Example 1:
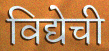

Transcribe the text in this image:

विद्येची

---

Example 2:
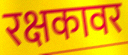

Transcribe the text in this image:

रक्षकावर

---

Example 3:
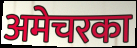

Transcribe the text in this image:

अमेचरका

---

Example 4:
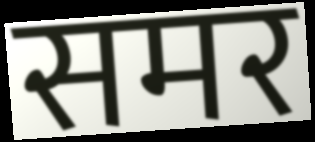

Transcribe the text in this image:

समर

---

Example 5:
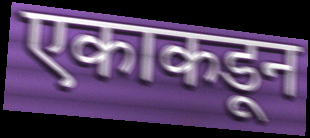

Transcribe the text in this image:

एकाकडून